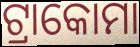
ଟ୍ରାକୋମା